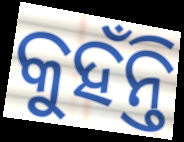
କୁହଁନ୍ତି